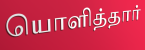
யொளித்தார்